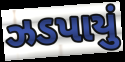
ઝડપાયું